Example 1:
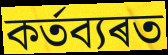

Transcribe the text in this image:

কৰ্তব্যৰত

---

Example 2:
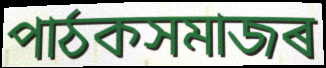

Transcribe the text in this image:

পাঠকসমাজৰ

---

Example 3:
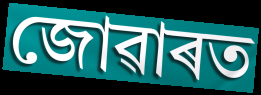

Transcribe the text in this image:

জোৱাৰত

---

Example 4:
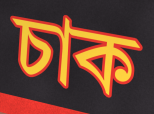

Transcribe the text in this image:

চাক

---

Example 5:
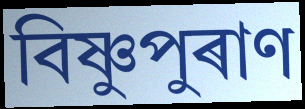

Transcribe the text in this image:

বিষ্ণুপুৰাণ